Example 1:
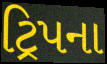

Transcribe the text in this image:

ટ્રિપના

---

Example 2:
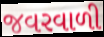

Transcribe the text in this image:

જવરવાળી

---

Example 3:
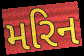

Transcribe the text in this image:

મરિન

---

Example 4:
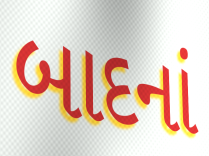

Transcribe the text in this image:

બાદનાં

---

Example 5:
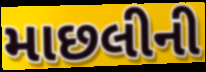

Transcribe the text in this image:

માછલીની